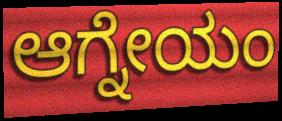
ಆಗ್ನೇಯಂ